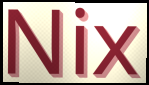
Nix